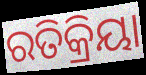
ରତିକ୍ରିୟା